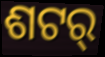
ଶଟର୍